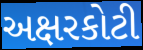
અક્ષરકોટી